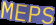
MEPS